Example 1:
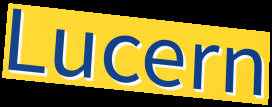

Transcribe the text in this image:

Lucern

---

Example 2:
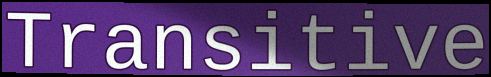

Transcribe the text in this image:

Transitive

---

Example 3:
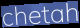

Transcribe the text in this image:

chetah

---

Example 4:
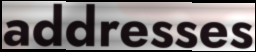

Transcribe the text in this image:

addresses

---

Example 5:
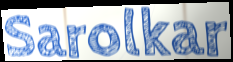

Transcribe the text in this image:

Sarolkar